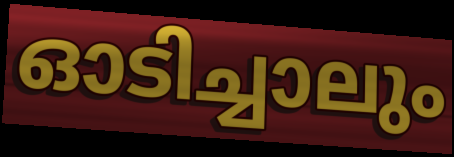
ഓടിച്ചാലും